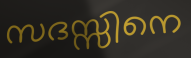
സദസ്സിനെ